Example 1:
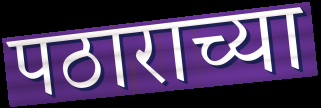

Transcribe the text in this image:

पठाराच्या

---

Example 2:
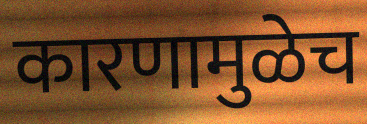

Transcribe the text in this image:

कारणामुळेच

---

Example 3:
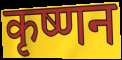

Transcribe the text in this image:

कृष्णन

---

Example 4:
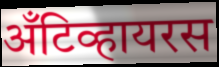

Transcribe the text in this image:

अँटिव्हायरस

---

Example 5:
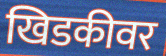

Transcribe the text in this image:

खिडकीवर